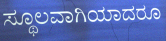
ಸ್ಥೂಲವಾಗಿಯಾದರೂ